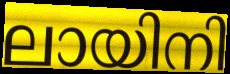
ലായിനി